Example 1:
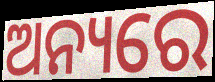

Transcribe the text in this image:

ଅନ୍ୟରେ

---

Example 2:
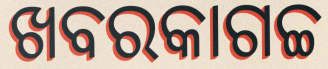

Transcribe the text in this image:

ଖବରକାଗଚ୍ଚ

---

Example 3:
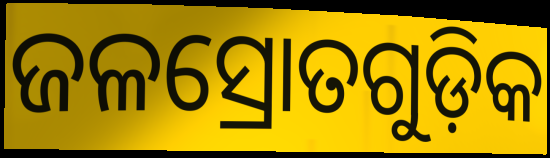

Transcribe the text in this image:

ଜଳସ୍ରୋତଗୁଡ଼ିକ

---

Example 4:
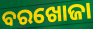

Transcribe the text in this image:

ବରଖୋଜା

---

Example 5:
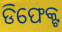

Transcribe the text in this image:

ଡିଫେକ୍ଟ